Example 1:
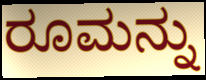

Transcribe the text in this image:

ರೂಮನ್ನು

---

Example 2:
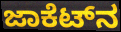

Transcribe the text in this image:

ಜಾಕೆಟ್‌ನ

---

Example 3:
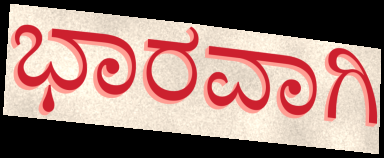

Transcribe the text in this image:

ಭಾರವಾಗಿ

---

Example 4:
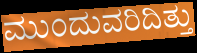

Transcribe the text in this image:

ಮುಂದುವರಿದಿತ್ತು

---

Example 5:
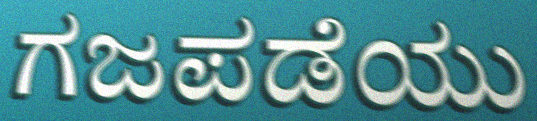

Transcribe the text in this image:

ಗಜಪಡೆಯು